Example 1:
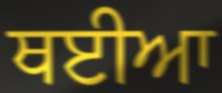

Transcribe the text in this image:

ਥਈਆ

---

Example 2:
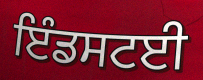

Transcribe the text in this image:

ਇੰਡਸਟਈ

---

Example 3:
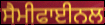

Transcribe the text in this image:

ਸੈਮੀਫਾਈਨਲ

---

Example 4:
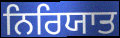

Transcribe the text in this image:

ਨਿਰਿਯਾਤ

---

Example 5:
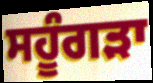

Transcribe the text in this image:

ਸਹੂੰਗੜਾ